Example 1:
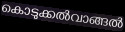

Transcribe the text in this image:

കൊടുക്കൽവാങ്ങൽ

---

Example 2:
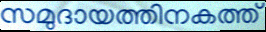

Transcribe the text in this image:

സമുദായത്തിനകത്ത്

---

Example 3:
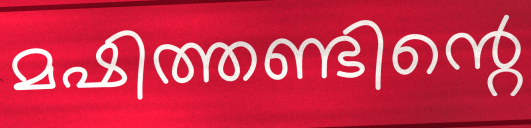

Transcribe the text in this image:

മഷിത്തണ്ടിന്റെ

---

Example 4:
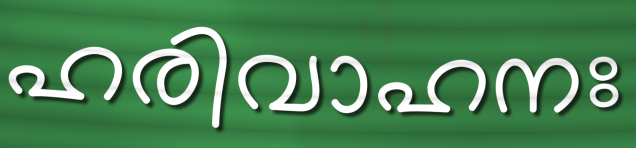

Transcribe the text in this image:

ഹരിവാഹനഃ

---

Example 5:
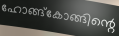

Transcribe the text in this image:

ഹോങ്ങ്കോങ്ങിന്റെ